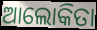
ଆଲୋକିତା